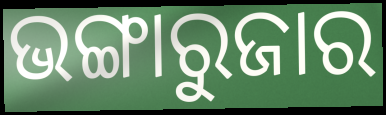
ଭଙ୍ଗାରୁଜାର